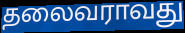
தலைவராவது